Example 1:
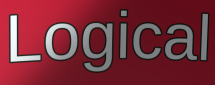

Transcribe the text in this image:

Logical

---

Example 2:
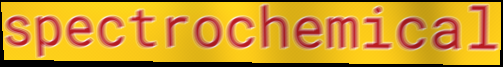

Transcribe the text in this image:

spectrochemical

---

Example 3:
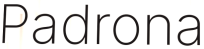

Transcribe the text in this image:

Padrona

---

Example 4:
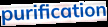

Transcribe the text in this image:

purification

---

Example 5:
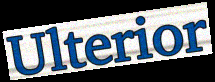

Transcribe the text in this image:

Ulterior